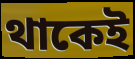
থাকেই